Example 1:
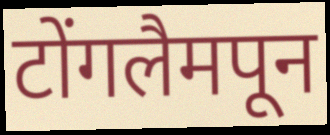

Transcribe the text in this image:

टोंगलैमपून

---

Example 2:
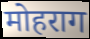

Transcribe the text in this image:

मोहराग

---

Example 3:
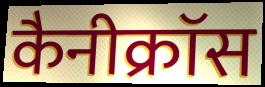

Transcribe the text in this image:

कैनीक्रॉस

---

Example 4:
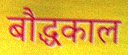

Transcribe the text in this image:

बौद्धकाल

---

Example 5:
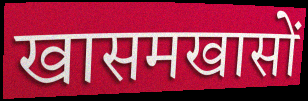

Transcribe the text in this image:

खासमखासों